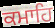
ਕਮਾਹਿ